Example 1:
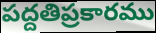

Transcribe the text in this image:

పద్దతిప్రకారము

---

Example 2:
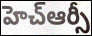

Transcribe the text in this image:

హెచ్ఆర్సీ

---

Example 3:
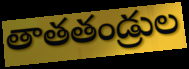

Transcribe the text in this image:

తాతతండ్రుల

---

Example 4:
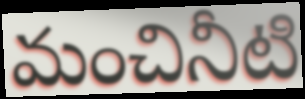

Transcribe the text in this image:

మంచినీటి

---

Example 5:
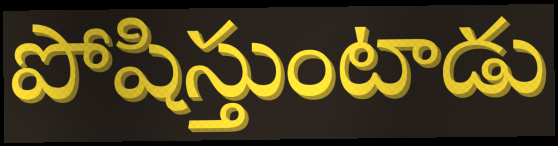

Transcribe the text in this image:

పోషిస్తుంటాడు